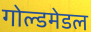
गोल्डमेडल